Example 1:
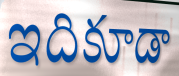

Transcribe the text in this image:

ఇదికూడా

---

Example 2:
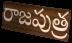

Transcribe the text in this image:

రాజపుత్ర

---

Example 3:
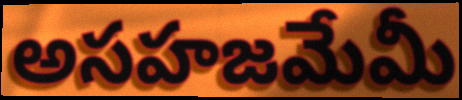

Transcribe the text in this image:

అసహజమేమీ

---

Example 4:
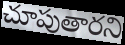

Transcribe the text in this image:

చూపుతారని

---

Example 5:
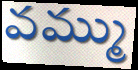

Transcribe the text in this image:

వమ్ము